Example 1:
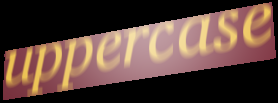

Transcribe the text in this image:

uppercase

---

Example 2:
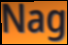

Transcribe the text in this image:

Nag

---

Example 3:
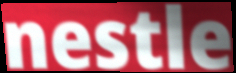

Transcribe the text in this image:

nestle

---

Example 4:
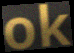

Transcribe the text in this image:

ok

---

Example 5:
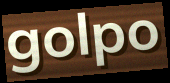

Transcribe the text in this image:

golpo